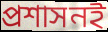
প্রশাসনই